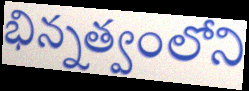
భిన్నత్వంలోని